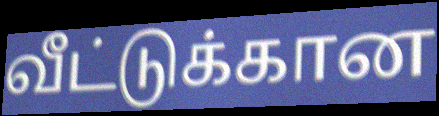
வீட்டுக்கான